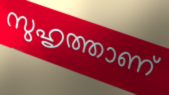
സുഹൃത്താണ്